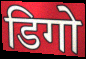
डिगो